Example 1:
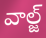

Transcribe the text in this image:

వాల్జ్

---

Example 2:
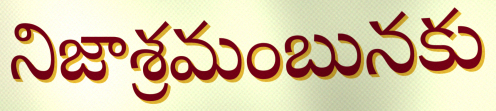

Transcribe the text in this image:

నిజాశ్రమంబునకు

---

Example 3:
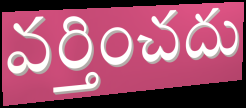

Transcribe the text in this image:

వర్తించదు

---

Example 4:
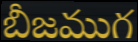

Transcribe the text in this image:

బీజముగ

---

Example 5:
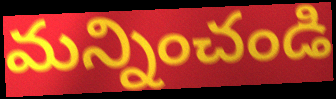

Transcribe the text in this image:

మన్నించండి